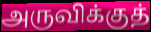
அருவிக்குத்